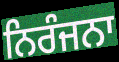
ਨਿਰੰਜਨਾ